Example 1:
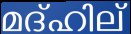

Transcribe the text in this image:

മദ്ഹില്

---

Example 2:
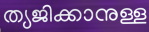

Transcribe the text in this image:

ത്യജിക്കാനുള്ള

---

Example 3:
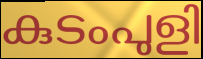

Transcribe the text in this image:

കുടംപുളി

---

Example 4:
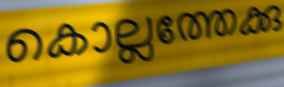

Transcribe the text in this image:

കൊല്ലത്തേക്കു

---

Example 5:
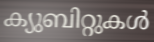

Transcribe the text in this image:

ക്യുബിറ്റുകൾ